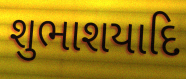
શુભાશયાદિ